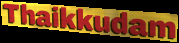
Thaikkudam